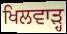
ਖਿਲਵਾੜ੍ਹ